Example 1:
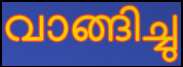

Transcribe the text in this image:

വാങ്ങിച്ചു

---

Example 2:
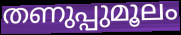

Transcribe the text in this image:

തണുപ്പുമൂലം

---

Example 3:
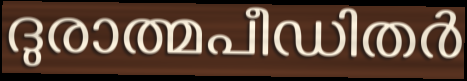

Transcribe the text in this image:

ദുരാത്മപീഡിതർ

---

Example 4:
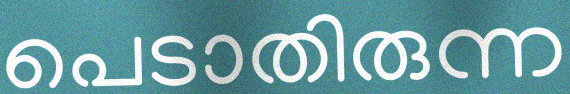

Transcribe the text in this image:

പെടാതിരുന്ന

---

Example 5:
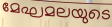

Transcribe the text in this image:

മേഘമലയുടെ